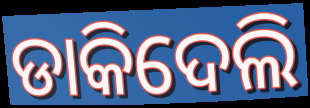
ଡାକିଦେଲି